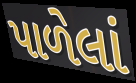
પાળેલાં